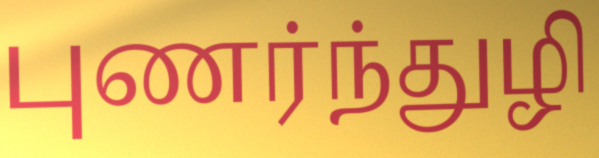
புணர்ந்துழி